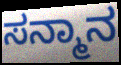
ಸನ್ಮಾನ